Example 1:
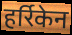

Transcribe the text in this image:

हर्रिकेन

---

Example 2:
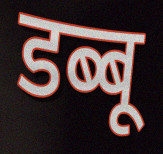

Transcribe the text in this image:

डब्बू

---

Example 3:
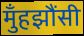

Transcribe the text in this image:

मुँहझौंसी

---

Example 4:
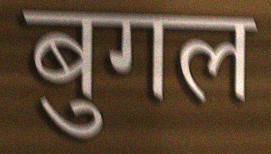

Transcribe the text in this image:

बुगल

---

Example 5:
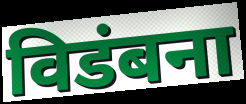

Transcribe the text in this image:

विडंबना